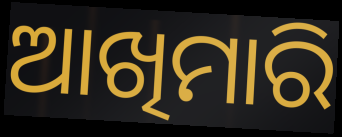
ଆଖିମାରି